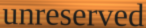
unreserved